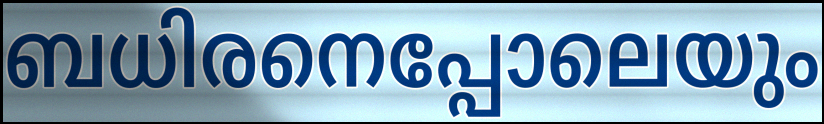
ബധിരനെപ്പോലെയും